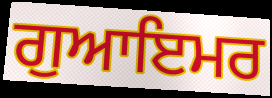
ਗੁਆਇਮਰ